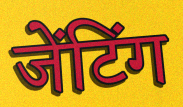
जेंटिंग